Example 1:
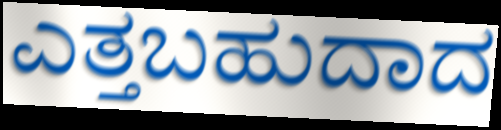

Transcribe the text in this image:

ಎತ್ತಬಹುದಾದ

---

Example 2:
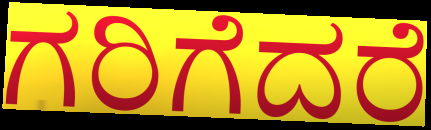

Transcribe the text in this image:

ಗರಿಗೆದರೆ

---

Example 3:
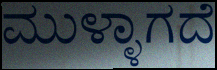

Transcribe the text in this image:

ಮುಳ್ಳಾಗದೆ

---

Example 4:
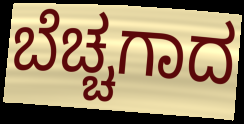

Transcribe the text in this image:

ಬೆಚ್ಚಗಾದ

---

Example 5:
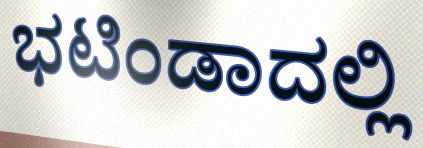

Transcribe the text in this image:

ಭಟಿಂಡಾದಲ್ಲಿ